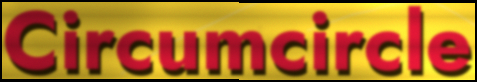
Circumcircle